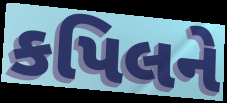
કપિલને